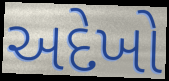
અદેખો